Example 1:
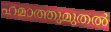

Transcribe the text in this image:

ഹമാത്തുമുതൽ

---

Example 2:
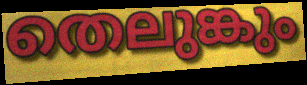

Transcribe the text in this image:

തെലുങ്കും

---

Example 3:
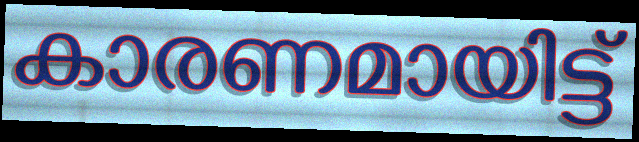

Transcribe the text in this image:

കാരണമായിട്ട്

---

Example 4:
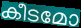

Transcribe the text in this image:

കീടമോ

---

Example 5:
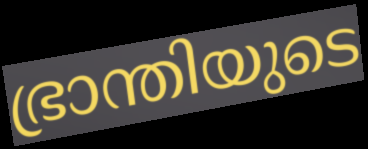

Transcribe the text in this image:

ഭ്രാന്തിയുടെ